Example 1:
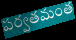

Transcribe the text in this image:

పర్వతమంత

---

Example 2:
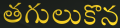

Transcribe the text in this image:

తగులుకొన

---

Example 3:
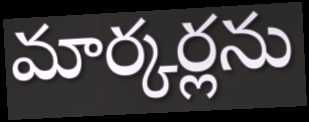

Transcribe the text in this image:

మార్కర్లను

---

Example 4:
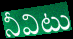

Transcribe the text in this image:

నీవిటు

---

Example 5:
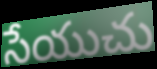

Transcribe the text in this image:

సేయుచు